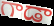
గాడా